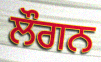
ਲੌਗਨ